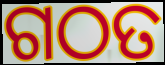
ଗଠତ